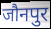
जौनपुर